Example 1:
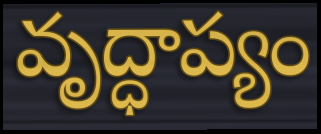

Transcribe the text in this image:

వృద్ధాప్యం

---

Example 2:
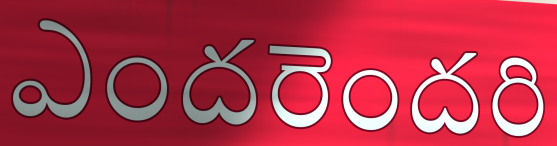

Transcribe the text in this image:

ఎందరెందరి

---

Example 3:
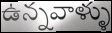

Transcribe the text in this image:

ఉన్నవాళ్ళు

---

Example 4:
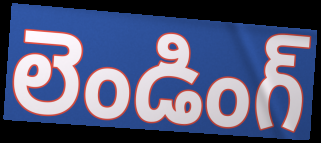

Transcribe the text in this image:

లెండింగ్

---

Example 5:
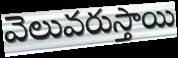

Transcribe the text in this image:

వెలువరుస్తాయి